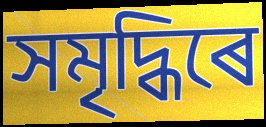
সমৃদ্ধিৰে